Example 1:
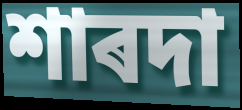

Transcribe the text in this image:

শাৰদা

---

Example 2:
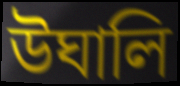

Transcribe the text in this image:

উঘালি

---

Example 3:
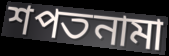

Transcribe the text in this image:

শপতনামা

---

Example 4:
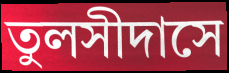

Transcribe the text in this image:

তুলসীদাসে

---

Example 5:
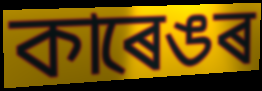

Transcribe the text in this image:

কাৰেঙৰ